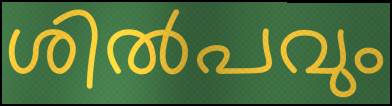
ശിൽപവും